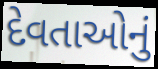
દેવતાઓનું